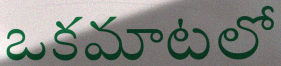
ఒకమాటలో